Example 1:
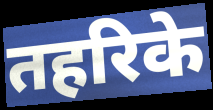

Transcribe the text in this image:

तहरिके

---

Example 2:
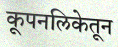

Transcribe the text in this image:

कूपनलिकेतून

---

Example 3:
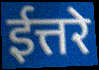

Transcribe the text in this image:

ईत्तरे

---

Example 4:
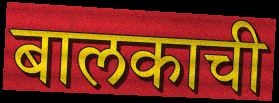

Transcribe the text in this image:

बालकाची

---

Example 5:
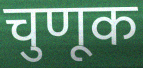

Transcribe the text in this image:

चुणूक